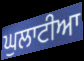
ਘੁਲਾਟੀਆ